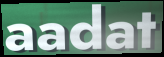
aadat